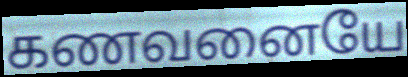
கணவனையே